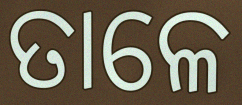
ତାଳେ